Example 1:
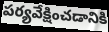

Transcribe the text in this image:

పర్యవేక్షించడానికి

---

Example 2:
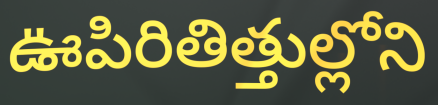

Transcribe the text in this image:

ఊపిరితిత్తుల్లోని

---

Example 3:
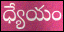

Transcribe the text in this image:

ధ్యేయం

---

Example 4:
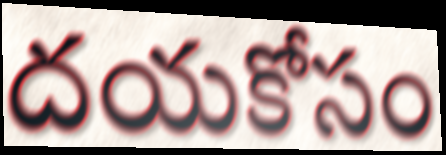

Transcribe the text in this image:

దయకోసం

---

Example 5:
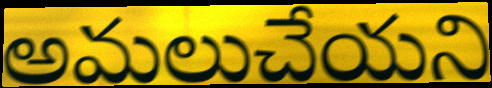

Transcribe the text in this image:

అమలుచేయని